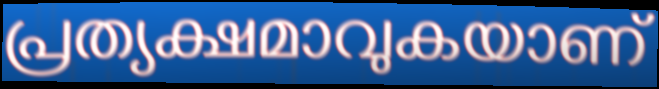
പ്രത്യക്ഷമാവുകയാണ്